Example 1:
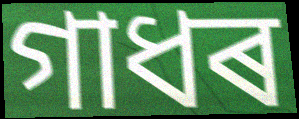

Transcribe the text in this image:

গাধৰ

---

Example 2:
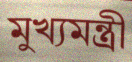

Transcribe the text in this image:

মুখ্যমন্ত্ৰী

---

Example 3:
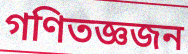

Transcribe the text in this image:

গণিতজ্ঞজন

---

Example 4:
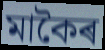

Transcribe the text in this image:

মাকৈৰ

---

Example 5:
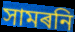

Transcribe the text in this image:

সামৰনি